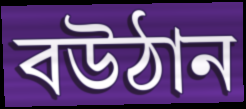
বউঠান